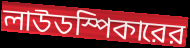
লাউডস্পিকারের